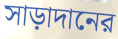
সাড়াদানের